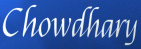
Chowdhary